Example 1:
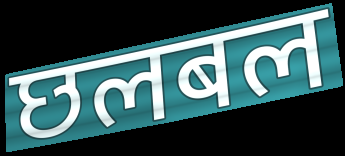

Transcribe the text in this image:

छलबल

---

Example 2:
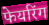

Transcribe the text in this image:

फेयरिंग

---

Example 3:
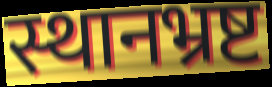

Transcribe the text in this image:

स्थानभ्रष्ट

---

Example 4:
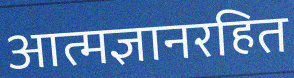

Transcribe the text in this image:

आत्मज्ञानरहित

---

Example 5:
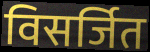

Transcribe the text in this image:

विसर्जित